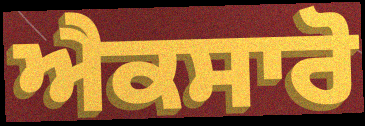
ਐਕਸਾਰੋ